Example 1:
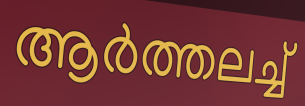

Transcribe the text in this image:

ആർത്തലച്ച്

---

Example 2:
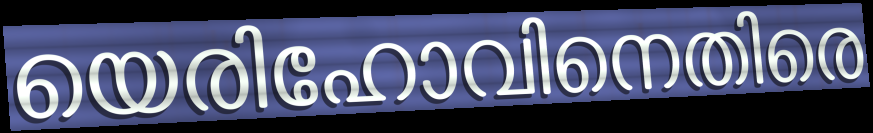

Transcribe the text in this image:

യെരിഹോവിനെതിരെ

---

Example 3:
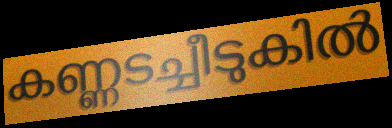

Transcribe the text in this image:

കണ്ണടച്ചീടുകിൽ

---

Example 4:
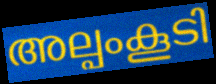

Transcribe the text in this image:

അല്പംകൂടി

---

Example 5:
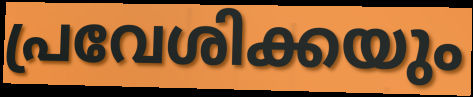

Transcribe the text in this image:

പ്രവേശിക്കയും